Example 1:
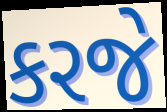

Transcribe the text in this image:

કરજે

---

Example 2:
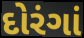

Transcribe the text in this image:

દોરંગાં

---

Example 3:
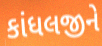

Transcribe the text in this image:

કાંધલજીને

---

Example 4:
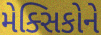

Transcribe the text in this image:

મેક્સિકોને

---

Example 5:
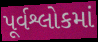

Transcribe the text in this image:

પૂર્વશ્લોકમાં